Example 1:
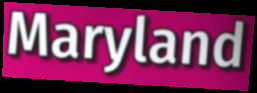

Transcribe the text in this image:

Maryland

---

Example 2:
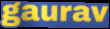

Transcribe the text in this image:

gaurav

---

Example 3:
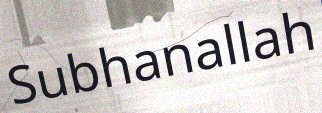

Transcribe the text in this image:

Subhanallah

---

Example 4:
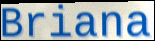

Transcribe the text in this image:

Briana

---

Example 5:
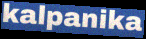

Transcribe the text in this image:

kalpanika